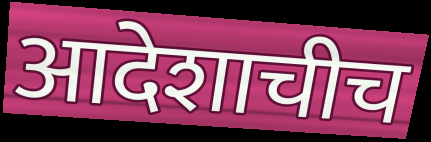
आदेशाचीच